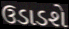
ઉડાડશે